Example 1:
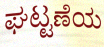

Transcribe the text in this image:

ಘಟ್ಟಣೆಯ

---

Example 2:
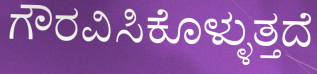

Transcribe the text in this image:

ಗೌರವಿಸಿಕೊಳ್ಳುತ್ತದೆ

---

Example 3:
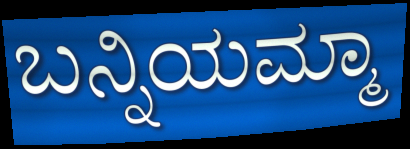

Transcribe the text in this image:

ಬನ್ನಿಯಮ್ಮಾ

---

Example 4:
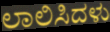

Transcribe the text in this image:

ಲಾಲಿಸಿದಳು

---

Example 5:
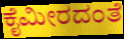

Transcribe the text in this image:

ಕೈಮೀರದಂತೆ